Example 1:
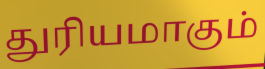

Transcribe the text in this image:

துரியமாகும்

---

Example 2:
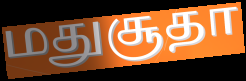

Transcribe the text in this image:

மதுசூதா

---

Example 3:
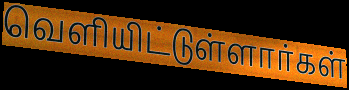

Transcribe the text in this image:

வெளியிட்டுள்ளார்கள்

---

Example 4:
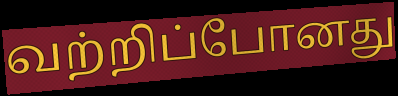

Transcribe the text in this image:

வற்றிப்போனது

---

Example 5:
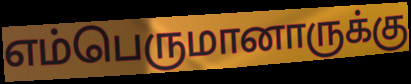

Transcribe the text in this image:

எம்பெருமானாருக்கு